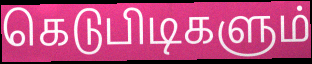
கெடுபிடிகளும்